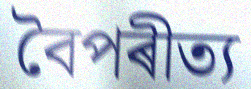
বৈপৰীত্য